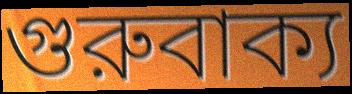
গুরুবাক্য